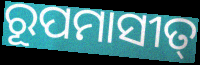
ରୂପମାସୀତ୍